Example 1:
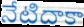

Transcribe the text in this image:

నేటిదాకా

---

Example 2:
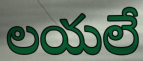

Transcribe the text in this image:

లయలే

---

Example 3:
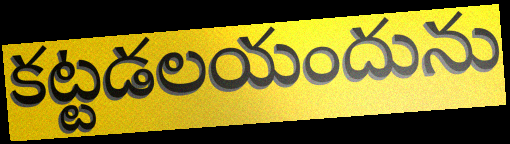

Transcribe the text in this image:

కట్టడలయందును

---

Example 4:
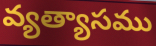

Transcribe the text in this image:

వ్యత్యాసము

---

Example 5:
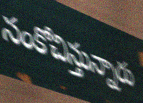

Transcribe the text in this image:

సంకోచిస్తున్నారు